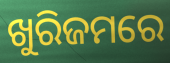
ଖୁରିଜମରେ